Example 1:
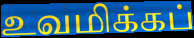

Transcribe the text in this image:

உவமிக்கப்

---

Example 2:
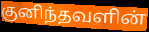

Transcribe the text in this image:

குனிந்தவளின்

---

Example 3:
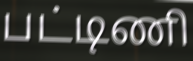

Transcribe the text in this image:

பட்டிணி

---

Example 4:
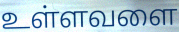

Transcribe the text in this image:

உள்ளவளை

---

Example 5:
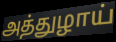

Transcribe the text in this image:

அத்துழாய்